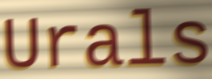
Urals